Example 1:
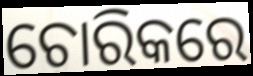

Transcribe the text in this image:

ଚୋରିକରେ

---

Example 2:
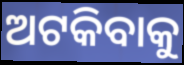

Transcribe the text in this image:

ଅଟକିବାକୁ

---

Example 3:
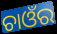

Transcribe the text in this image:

ଚାଓଁର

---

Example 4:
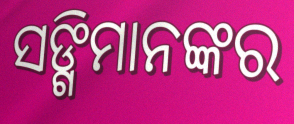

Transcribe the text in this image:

ସଙ୍ଗିମାନଙ୍କର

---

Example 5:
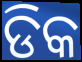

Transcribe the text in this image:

ଡିକ